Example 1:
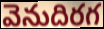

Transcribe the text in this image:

వెనుదిరగ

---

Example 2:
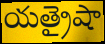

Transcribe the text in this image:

యత్రైషా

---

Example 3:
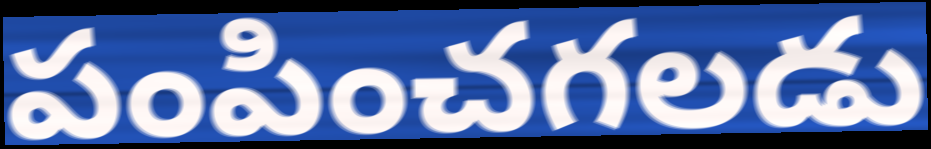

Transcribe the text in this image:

పంపించగలడు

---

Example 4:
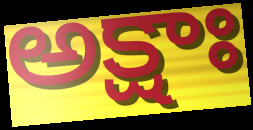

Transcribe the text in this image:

అక్షాః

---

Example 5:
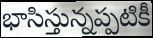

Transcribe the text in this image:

భాసిస్తున్నప్పటికీ